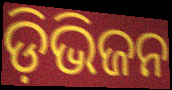
ଡ଼ିଭିଜନ